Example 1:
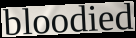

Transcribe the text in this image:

bloodied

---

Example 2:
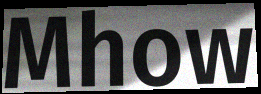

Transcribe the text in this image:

Mhow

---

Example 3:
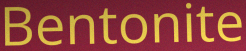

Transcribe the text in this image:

Bentonite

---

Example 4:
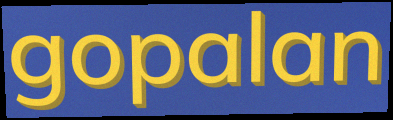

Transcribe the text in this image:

gopalan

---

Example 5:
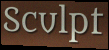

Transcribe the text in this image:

Sculpt